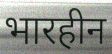
भारहीन